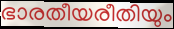
ഭാരതീയരീതിയും